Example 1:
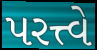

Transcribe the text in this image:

પરત્ત્વે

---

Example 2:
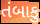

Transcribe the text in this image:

તંબાકુ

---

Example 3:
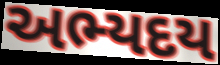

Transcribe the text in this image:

અભ્યદય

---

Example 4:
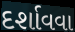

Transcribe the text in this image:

દર્શાવવા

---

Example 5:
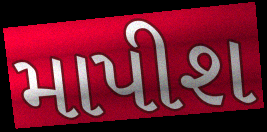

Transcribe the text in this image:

માપીશ